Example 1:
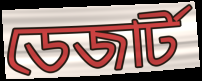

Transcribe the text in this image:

ডেজার্ট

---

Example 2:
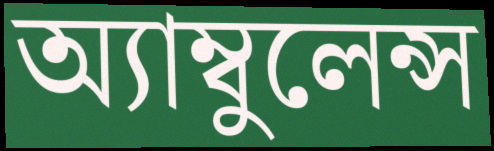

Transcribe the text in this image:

অ্যাম্বুলেন্স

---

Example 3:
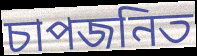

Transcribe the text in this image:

চাপজনিত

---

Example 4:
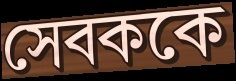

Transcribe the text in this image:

সেবককে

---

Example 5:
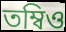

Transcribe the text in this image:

তম্বিও